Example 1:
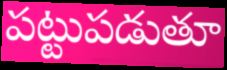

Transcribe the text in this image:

పట్టుపడుతూ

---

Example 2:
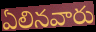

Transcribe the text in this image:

ఏలినవారు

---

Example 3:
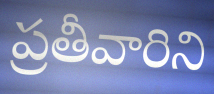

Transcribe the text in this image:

ప్రతీవారిని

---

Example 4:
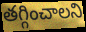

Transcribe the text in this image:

తగ్గించాలని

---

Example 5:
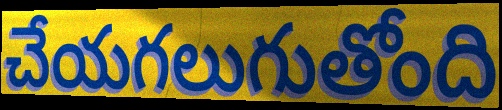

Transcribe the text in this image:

చేయగలుగుతోంది